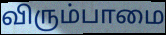
விரும்பாமை